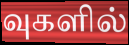
வுகளில்